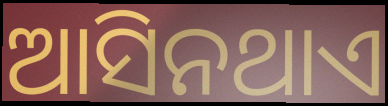
ଆସିନଥାଏ